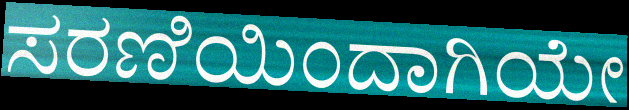
ಸರಣಿಯಿಂದಾಗಿಯೇ